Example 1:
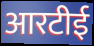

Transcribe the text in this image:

आरटीई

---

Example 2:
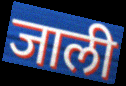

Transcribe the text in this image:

जाली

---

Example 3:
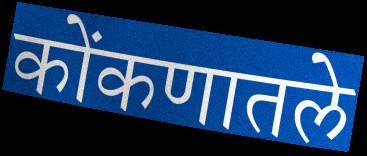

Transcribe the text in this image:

कोंकणातले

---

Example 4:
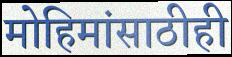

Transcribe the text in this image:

मोहिमांसाठीही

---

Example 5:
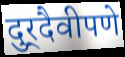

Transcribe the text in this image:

दुर्दैवीपणे